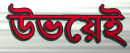
উভয়েই